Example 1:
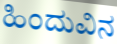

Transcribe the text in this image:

ಹಿಂದುವಿನ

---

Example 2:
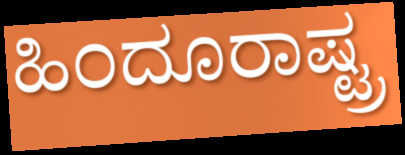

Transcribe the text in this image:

ಹಿಂದೂರಾಷ್ಟ್ರ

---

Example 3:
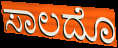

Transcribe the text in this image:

ಸಾಲದೊ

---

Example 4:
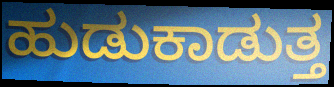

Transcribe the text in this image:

ಹುಡುಕಾಡುತ್ತ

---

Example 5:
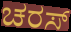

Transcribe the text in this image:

ಚರಸ್